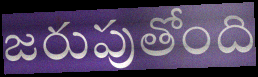
జరుపుతోంది